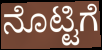
ನೊಟ್ಟಿಗೆ